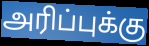
அரிப்புக்கு